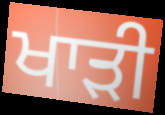
ਖਾਡ਼ੀ